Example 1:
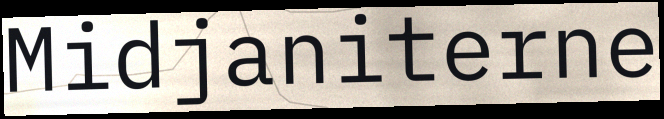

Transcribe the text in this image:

Midjaniterne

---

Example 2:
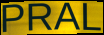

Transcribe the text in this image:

PRAL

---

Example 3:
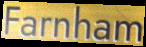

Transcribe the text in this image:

Farnham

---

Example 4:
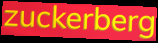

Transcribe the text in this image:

zuckerberg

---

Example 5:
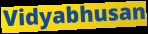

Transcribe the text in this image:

Vidyabhusan